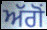
ਅੱਗੋਂ